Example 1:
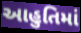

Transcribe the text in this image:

આહુતિમાં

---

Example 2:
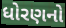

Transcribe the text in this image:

ધોરણનો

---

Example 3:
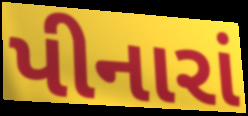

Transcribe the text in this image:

પીનારાં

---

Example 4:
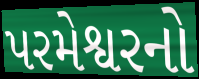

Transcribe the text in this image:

પરમેશ્વરનો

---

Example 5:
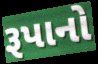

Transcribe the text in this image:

રૂપાનો